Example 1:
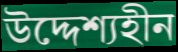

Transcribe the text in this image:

উদ্দেশ্যহীন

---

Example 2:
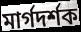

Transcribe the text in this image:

মার্গদর্শক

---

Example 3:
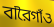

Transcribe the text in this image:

বারৈগাঁও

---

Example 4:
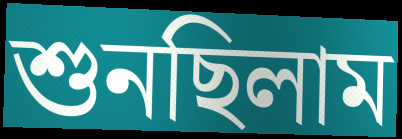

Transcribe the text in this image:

শুনছিলাম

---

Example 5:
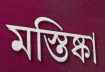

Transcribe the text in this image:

মস্তিষ্কা